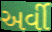
અર્વી